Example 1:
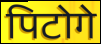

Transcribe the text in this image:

पिटोगे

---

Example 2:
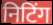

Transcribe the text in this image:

निटिंग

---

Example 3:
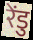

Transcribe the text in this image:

रेंडु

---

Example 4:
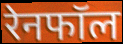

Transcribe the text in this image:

रेनफॉल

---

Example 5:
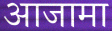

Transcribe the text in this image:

आजामा